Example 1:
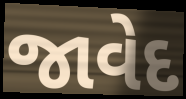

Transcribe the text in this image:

જાવેદ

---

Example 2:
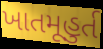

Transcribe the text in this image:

ખાતમૂહુર્ત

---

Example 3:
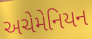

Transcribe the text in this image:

અચેમેનિયન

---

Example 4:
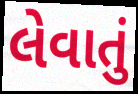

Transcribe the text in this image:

લેવાતું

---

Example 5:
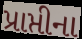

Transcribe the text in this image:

પ્રાપ્તીના